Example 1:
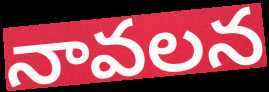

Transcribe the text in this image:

నావలన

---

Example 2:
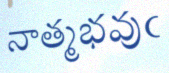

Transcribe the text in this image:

నాత్మభవుఁ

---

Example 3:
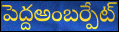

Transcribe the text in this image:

పెద్దఅంబర్పేట్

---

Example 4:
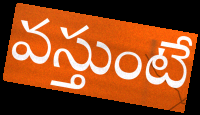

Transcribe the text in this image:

వస్తుంటే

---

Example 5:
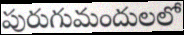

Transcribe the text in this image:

పురుగుమందులలో